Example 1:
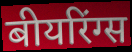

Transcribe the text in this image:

बीयरिंग्स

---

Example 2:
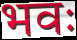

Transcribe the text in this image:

भवः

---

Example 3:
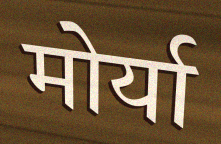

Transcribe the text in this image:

मोर्या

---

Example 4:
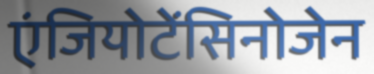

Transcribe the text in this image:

एंजियोटेंसिनोजेन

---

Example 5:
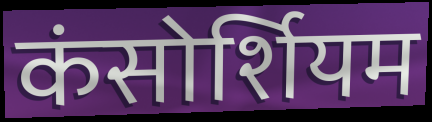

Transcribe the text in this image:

कंसोर्शियम